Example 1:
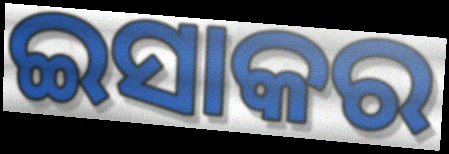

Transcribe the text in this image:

ଇସାକର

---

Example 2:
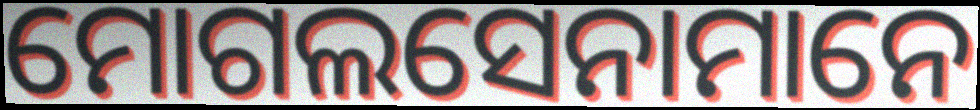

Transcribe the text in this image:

ମୋଗଲସେନାମାନେ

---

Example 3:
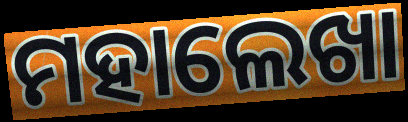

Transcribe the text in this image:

ମହାଲେଖା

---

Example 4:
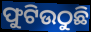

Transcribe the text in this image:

ଫୁଟିଉଠୁଛି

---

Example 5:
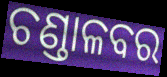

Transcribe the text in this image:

ଚଣ୍ଡାଳବର